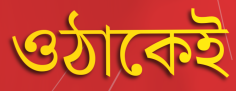
ওঠাকেই